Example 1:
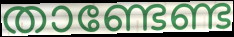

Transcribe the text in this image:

താണ്ടേണ്ട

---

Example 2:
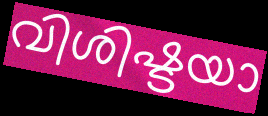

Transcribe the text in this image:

വിശിഷ്ടയാ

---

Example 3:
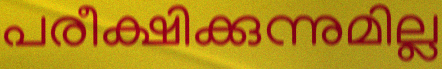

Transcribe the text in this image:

പരീക്ഷിക്കുന്നുമില്ല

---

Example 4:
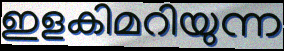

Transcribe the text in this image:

ഇളകിമറിയുന്ന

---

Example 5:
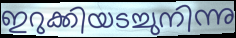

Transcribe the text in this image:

ഇറുക്കിയടച്ചുനിന്നു